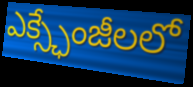
ఎక్స్ఛేంజీలలో